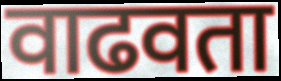
वाढवता